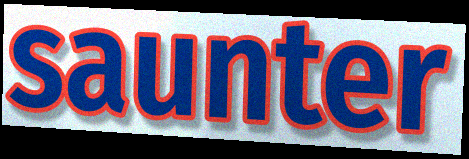
saunter